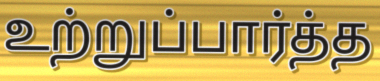
உற்றுப்பார்த்த